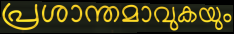
പ്രശാന്തമാവുകയും